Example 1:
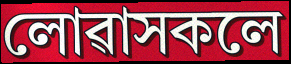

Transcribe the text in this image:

লোৱাসকলে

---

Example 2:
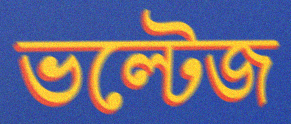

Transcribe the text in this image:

ভল্টেজ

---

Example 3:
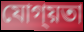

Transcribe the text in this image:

যোগ্য়তা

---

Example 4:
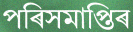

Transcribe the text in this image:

পৰিসমাপ্তিৰ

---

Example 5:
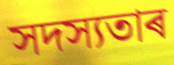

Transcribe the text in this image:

সদস্যতাৰ